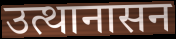
उत्थानासन